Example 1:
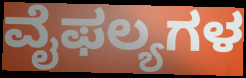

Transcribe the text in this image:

ವೈಫಲ್ಯಗಳ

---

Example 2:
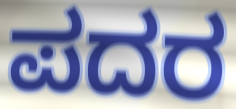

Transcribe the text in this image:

ಪದರ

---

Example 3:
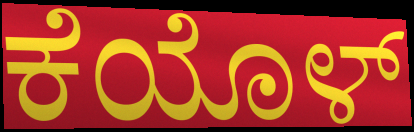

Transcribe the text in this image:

ಕೆಯೊಳ್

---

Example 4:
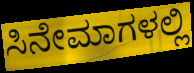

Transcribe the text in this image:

ಸಿನೇಮಾಗಳಲ್ಲಿ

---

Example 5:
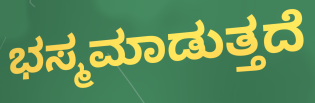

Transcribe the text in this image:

ಭಸ್ಮಮಾಡುತ್ತದೆ